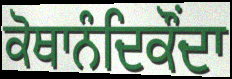
ਕੋਥਾਨੰਦਿਕੌਂਦਾ